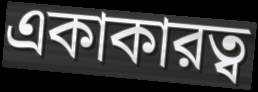
একাকারত্ব